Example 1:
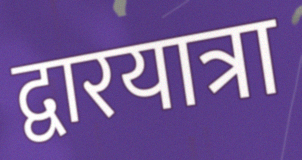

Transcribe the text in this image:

द्वारयात्रा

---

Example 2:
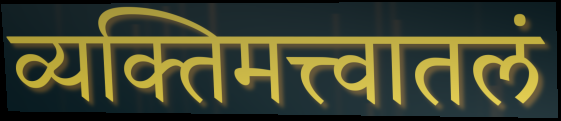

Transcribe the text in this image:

व्यक्तिमत्त्वातलं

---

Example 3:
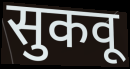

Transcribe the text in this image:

सुकवू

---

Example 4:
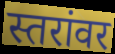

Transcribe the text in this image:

स्तरांवर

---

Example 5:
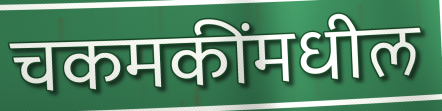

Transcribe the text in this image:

चकमकींमधील